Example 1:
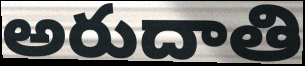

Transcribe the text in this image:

అరుదాతి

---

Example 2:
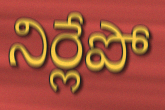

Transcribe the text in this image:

నిర్లేపో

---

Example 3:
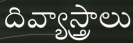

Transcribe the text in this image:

దివ్యాస్త్రాలు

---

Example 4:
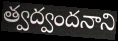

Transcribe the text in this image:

త్వద్వందనాని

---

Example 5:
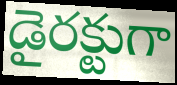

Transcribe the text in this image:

డైరక్టుగా